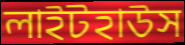
লাইটহাউস